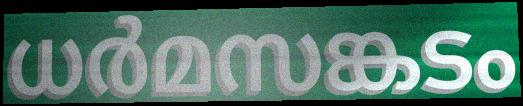
ധർമസങ്കടം